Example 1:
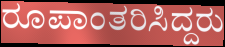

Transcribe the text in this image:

ರೂಪಾಂತರಿಸಿದ್ದರು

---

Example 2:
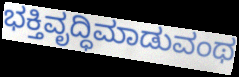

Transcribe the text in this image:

ಭಕ್ತಿವೃದ್ಧಿಮಾಡುವಂಥ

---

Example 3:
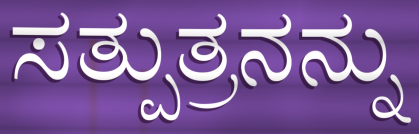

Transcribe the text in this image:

ಸತ್ಪುತ್ರನನ್ನು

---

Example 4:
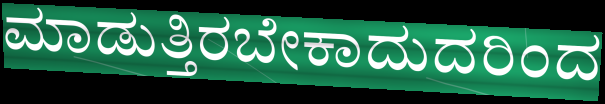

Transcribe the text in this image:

ಮಾಡುತ್ತಿರಬೇಕಾದುದರಿಂದ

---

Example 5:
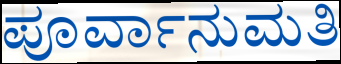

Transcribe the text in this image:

ಪೂರ್ವಾನುಮತಿ